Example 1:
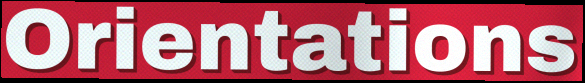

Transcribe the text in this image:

Orientations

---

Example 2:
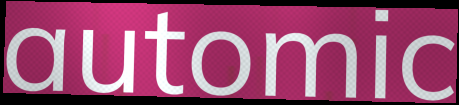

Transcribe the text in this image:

automic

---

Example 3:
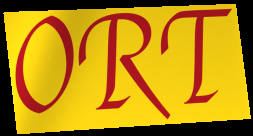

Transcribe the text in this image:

ORT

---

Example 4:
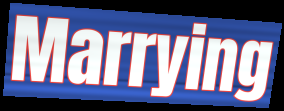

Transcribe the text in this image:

Marrying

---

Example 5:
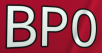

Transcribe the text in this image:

BPO